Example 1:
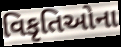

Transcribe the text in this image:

વિકૃતિઓના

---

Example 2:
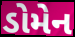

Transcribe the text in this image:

ડોમેન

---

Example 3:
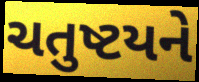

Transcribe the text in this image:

ચતુષ્ટયને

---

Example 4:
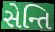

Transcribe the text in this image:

સેન્તિ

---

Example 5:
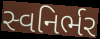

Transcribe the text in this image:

સ્વનિર્ભર